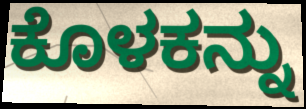
ಕೊಳಕನ್ನು